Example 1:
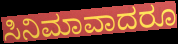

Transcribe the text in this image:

ಸಿನಿಮಾವಾದರೂ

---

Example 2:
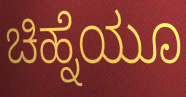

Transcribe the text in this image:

ಚಿಹ್ನೆಯೂ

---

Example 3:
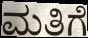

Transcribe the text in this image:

ಮತಿಗೆ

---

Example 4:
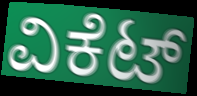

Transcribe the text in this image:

ವಿಕೆಟ್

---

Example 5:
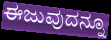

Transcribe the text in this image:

ಈಜುವುದನ್ನೂ